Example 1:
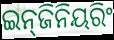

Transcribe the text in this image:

ଇନ୍‍ଜିନିୟରିଂ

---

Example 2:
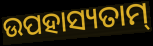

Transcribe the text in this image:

ଉପହାସ୍ୟତାମ୍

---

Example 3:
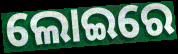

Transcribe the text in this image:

ଲୋଇରେ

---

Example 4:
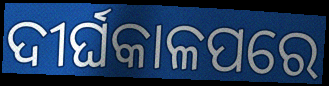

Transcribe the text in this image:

ଦୀର୍ଘକାଳପରେ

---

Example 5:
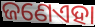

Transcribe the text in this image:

ଜଣେଏହା